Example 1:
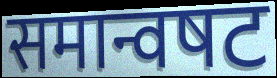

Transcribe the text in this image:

समान्वषट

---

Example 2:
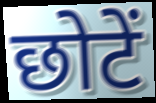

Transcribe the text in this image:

छोटें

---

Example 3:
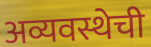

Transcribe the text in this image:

अव्यवस्थेची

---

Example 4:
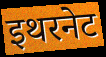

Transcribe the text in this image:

इथरनेट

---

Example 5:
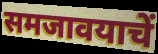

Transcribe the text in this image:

समजावयाचें